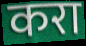
करा